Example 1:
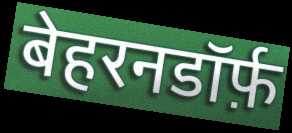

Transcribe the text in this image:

बेहरनडॉर्फ़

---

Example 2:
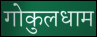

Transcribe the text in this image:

गोकुलधाम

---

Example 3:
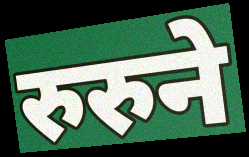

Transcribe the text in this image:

रुरुने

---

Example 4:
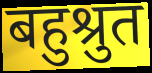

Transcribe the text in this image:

बहुश्रुत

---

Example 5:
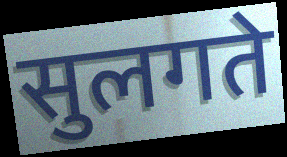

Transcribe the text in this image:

सुलगते